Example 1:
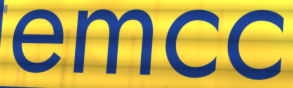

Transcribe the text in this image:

emcc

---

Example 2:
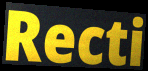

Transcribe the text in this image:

Recti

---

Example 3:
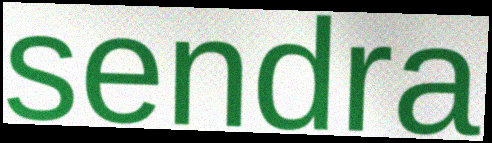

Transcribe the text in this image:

sendra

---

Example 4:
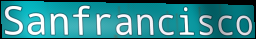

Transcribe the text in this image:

Sanfrancisco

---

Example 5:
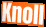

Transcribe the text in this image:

Knoll